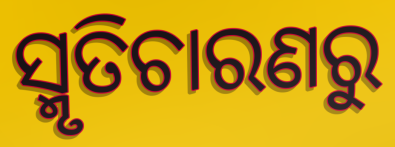
ସ୍ମୃତିଚାରଣରୁ